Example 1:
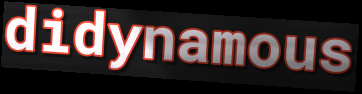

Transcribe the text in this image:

didynamous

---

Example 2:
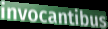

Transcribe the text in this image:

invocantibus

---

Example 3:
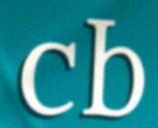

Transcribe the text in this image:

cb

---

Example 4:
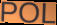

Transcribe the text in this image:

POL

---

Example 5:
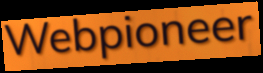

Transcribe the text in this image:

Webpioneer